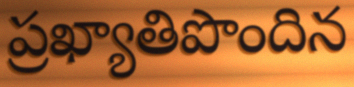
ప్రఖ్యాతిపొందిన